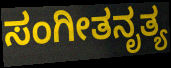
ಸಂಗೀತನೃತ್ಯ